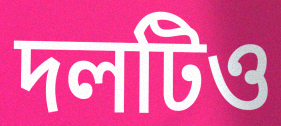
দলটিও